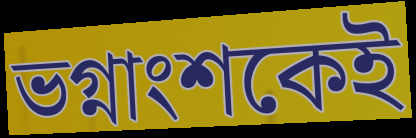
ভগ্নাংশকেই